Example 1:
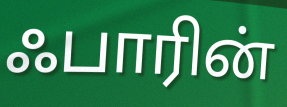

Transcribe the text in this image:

ஃபாரின்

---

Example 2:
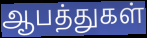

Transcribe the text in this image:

ஆபத்துகள்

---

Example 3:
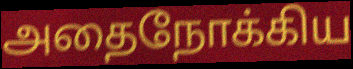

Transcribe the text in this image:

அதைநோக்கிய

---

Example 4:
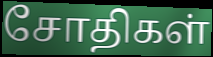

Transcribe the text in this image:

சோதிகள்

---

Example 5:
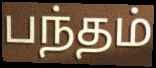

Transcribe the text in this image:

பந்தம்